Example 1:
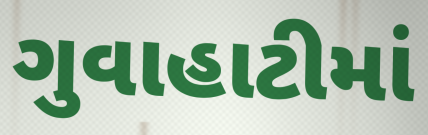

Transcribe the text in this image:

ગુવાહાટીમાં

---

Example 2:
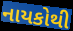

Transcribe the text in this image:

નાયકોથી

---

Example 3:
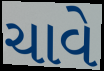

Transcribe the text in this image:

ચાવે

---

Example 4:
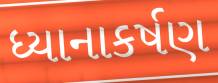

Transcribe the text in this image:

ધ્યાનાકર્ષણ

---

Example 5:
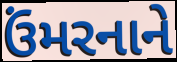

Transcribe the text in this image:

ઉંમરનાને